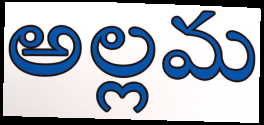
అల్లమ